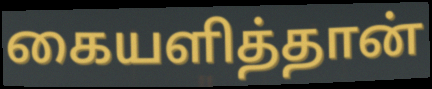
கையளித்தான்